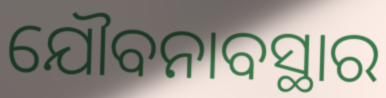
ଯୌବନାବସ୍ଥାର